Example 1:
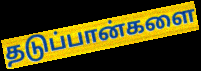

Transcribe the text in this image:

தடுப்பான்களை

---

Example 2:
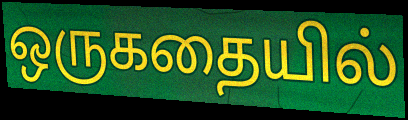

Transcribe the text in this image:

ஒருகதையில்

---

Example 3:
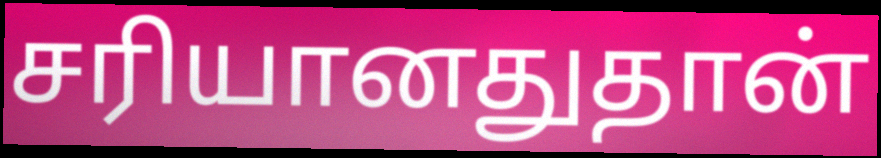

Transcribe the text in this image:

சரியானதுதான்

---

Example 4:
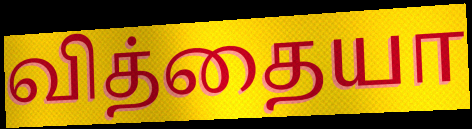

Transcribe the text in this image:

வித்தையா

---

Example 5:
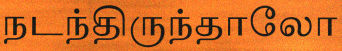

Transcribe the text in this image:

நடந்திருந்தாலோ